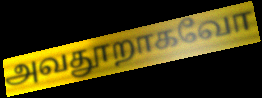
அவதூறாகவோ